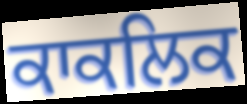
ਕਾਕਲਿਕ